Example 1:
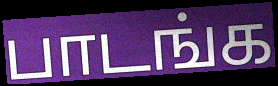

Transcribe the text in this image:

பாடங்க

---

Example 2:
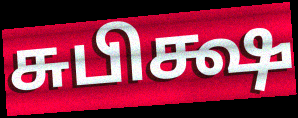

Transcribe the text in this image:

சுபிக்ஷ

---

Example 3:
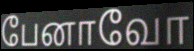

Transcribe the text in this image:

பேனாவோ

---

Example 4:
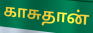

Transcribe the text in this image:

காசுதான்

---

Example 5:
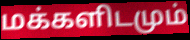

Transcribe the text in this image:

மக்களிடமும்